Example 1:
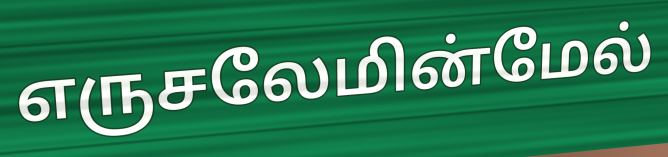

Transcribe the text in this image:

எருசலேமின்மேல்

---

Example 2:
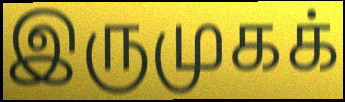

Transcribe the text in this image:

இருமுகக்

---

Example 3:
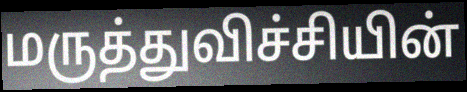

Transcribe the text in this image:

மருத்துவிச்சியின்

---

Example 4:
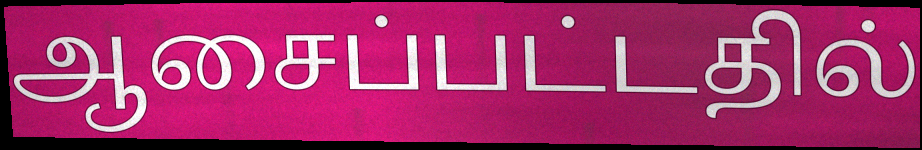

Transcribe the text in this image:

ஆசைப்பட்டதில்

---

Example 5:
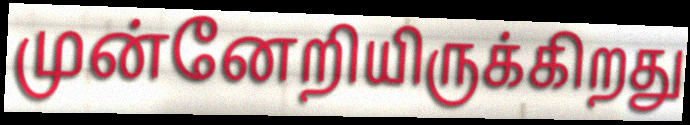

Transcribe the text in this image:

முன்னேறியிருக்கிறது